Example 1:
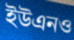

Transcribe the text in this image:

ইউএনও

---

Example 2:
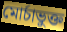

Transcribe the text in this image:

মোর্চাভুক্ত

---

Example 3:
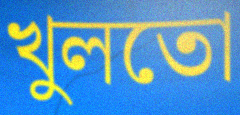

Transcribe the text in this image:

খুলতো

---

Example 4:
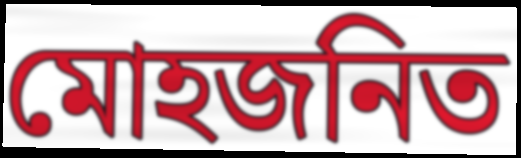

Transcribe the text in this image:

মোহজনিত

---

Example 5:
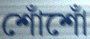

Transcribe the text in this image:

শোঁশোঁ